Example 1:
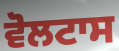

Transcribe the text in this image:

ਵੋਲਟਾਸ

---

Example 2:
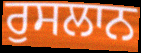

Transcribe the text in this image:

ਰੁਸਲਾਨ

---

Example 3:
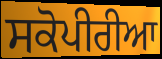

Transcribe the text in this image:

ਸਕੋਪੀਰੀਆ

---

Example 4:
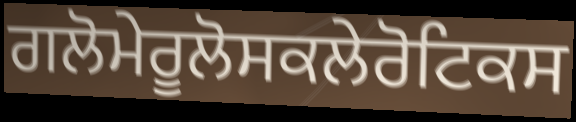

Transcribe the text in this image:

ਗਲੋਮੇਰੂਲੋਸਕਲੇਰੋਟਿਕਸ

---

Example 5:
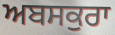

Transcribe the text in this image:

ਅਬਸਕੁਰਾ